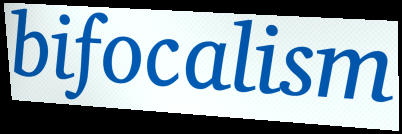
bifocalism